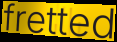
fretted